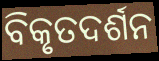
ବିକୃତଦର୍ଶନ